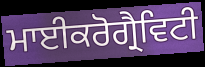
ਮਾਈਕਰੋਗ੍ਰੈਵਿਟੀ